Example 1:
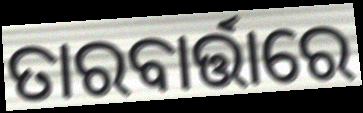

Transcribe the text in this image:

ତାରବାର୍ତ୍ତାରେ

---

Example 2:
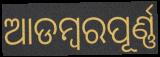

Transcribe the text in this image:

ଆଡମ୍ବରପୂର୍ଣ୍ଣ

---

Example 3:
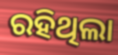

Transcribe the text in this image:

ରହିଥିଲା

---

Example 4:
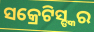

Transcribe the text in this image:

ସକ୍ରେଟିସ୍ଙ୍କର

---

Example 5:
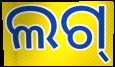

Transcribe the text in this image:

ଲଗ୍